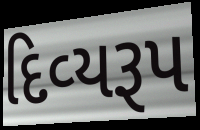
દિવ્‍યરૂપ